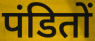
पंडितों